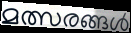
മത്സരങ്ങൾ